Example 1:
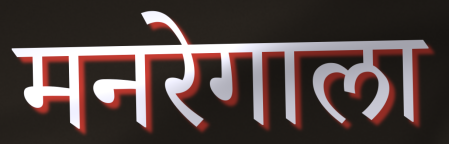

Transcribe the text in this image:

मनरेगाला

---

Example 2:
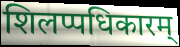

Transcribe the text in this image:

शिलप्पधिकारम्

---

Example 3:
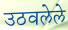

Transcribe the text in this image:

उठवलेले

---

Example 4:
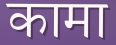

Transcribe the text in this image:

कामा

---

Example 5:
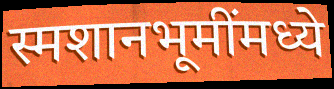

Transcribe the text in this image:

स्मशानभूमींमध्ये